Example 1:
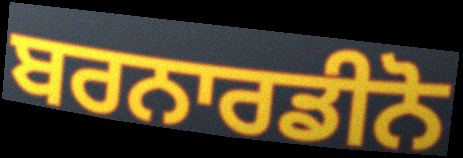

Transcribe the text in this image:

ਬਰਨਾਰਡੀਨੋ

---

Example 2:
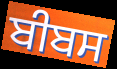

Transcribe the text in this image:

ਬੀਬਸ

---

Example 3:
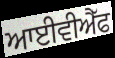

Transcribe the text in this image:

ਆਈਵੀਐੱਫ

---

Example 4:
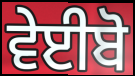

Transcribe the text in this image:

ਵੇਈਬੋ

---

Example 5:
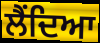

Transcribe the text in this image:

ਲੈਂਦਿਆ